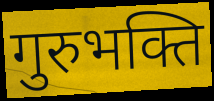
गुरुभक्ति